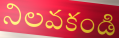
నిలవకండి